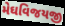
મેઘવિજયજી